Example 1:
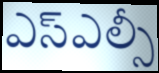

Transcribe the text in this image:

ఎస్ఎల్సీ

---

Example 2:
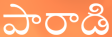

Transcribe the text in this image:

పారాడి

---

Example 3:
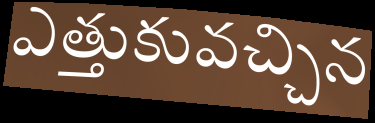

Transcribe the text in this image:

ఎత్తుకువచ్చిన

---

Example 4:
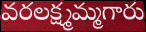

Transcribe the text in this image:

వరలక్ష్మమ్మగారు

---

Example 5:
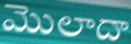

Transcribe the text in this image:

మొలాదా